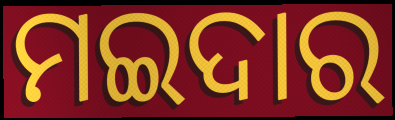
ମଇଦାର